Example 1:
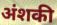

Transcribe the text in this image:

अंशकी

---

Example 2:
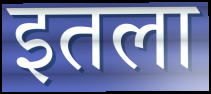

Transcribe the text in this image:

इतला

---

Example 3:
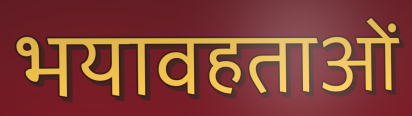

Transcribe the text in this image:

भयावहताओं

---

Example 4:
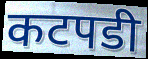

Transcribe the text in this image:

कटपडी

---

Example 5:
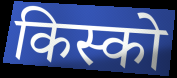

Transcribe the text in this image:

किस्को